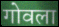
गोवला